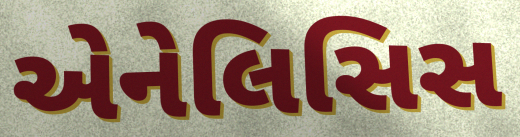
એનેલિસિસ